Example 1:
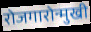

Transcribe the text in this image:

रोजगारोन्मुखी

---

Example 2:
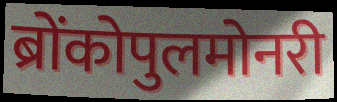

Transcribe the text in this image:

ब्रोंकोपुलमोनरी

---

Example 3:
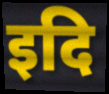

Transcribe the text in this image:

इदि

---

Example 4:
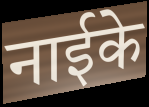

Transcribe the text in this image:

नाईके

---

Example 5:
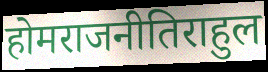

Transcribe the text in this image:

होमराजनीतिराहुल